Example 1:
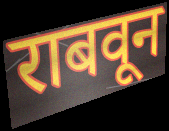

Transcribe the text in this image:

राबवून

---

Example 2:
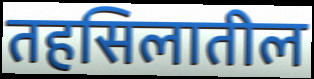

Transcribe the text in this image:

तहसिलातील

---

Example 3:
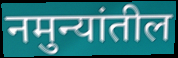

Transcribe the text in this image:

नमुन्यांतील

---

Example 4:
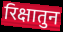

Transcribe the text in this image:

रिक्षातुन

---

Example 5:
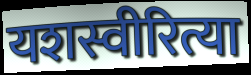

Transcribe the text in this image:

यशस्वीरित्या